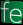
fe